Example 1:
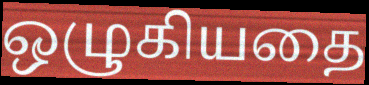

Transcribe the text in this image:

ஒழுகியதை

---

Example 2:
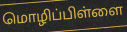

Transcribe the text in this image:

மொழிப்பிள்ளை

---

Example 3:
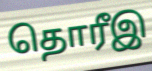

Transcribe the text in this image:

தொரீஇ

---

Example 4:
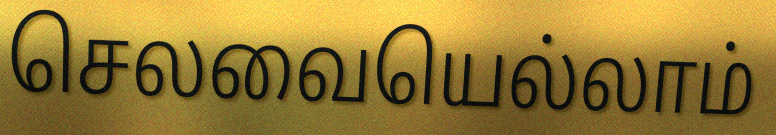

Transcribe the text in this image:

செலவையெல்லாம்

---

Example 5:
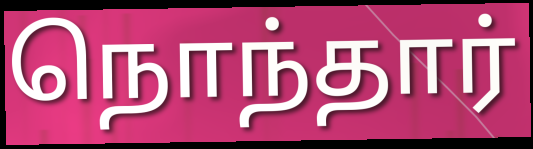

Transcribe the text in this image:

நொந்தார்